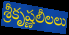
శ్రీకృష్ణలీలలు